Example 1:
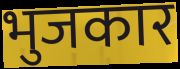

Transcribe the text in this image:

भुजकार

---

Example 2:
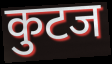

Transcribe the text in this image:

कुटज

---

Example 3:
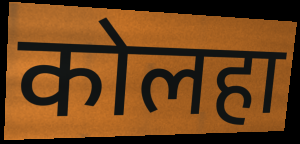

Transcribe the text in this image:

कोलहा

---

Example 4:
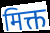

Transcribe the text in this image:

मिक्त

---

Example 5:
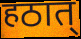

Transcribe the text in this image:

हठात्